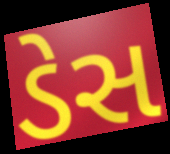
ડેસ